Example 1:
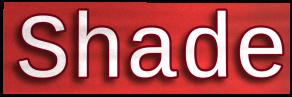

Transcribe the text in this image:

Shade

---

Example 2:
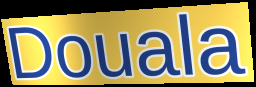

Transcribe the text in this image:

Douala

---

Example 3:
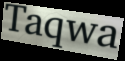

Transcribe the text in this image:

Taqwa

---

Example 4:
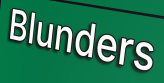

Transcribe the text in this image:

Blunders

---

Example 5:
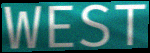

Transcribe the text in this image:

WEST